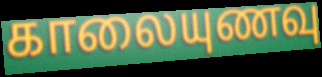
காலையுணவு